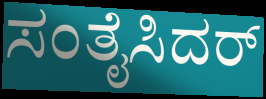
ಸಂತೈಸಿದರ್